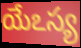
యేఽస్య